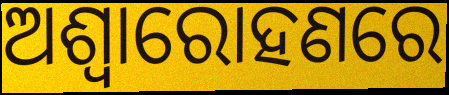
ଅଶ୍ୱାରୋହଣରେ